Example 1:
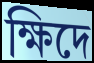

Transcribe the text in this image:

ক্ষিদে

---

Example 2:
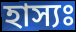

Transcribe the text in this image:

হাস্যঃ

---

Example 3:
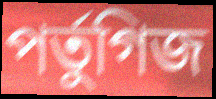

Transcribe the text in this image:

পর্তুগিজ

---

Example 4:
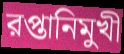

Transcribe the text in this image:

রপ্তানিমুখী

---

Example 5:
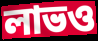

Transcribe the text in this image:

লাভও